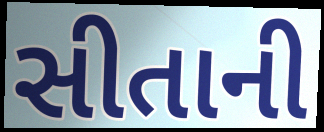
સીતાની